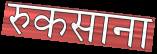
रुकसाना